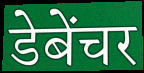
डेबेंचर